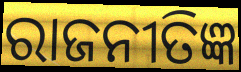
ରାଜନୀତିଜ୍ଞ